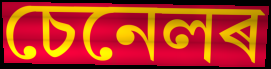
চেনেলৰ